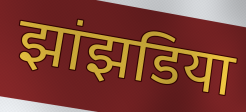
झांझडिया